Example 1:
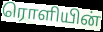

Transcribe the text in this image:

ரொளியின்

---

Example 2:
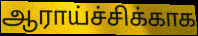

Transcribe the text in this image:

ஆராய்ச்சிக்காக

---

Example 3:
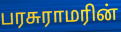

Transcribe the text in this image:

பரசுராமரின்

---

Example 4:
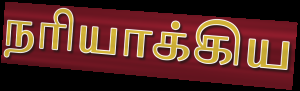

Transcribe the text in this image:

நரியாக்கிய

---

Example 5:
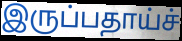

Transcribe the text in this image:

இருப்பதாய்ச்